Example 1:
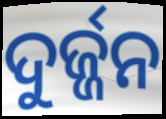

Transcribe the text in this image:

ଦୁର୍ଜ୍ଜନ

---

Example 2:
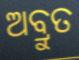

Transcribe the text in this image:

ଅବ୍ରୁତ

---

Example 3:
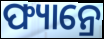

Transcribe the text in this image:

ଫ୍ୟାନ୍ରେ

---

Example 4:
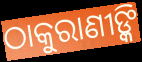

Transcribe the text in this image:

ଠାକୁରାଣୀଙ୍କି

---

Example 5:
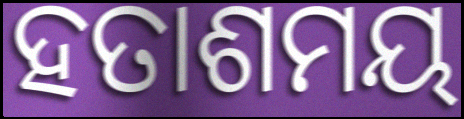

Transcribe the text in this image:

ହତାଶମୟ